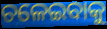
ଚଳେଇବାକୁ